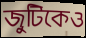
জুটিকেও